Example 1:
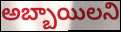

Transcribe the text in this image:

అబ్బాయిలని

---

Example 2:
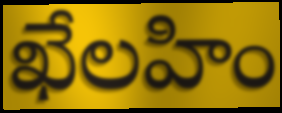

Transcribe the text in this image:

ఖేలహిం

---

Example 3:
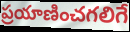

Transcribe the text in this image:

ప్రయాణించగలిగే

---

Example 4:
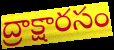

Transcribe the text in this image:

ద్రాక్షారసం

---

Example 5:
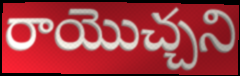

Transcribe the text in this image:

రాయొచ్చని